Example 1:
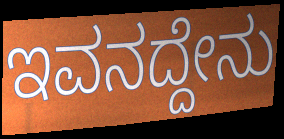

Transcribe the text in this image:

ಇವನದ್ದೇನು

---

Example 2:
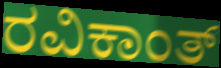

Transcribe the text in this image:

ರವಿಕಾಂತ್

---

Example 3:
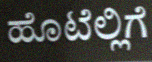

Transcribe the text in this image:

ಹೊಟೆಲ್ಲಿಗೆ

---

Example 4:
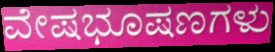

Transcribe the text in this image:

ವೇಷಭೂಷಣಗಳು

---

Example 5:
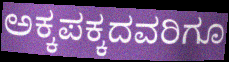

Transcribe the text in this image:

ಅಕ್ಕಪಕ್ಕದವರಿಗೂ